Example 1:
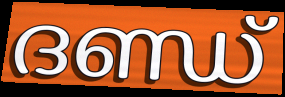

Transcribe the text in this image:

ദണ്ഡ്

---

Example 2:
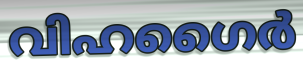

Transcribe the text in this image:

വിഹഗൈർ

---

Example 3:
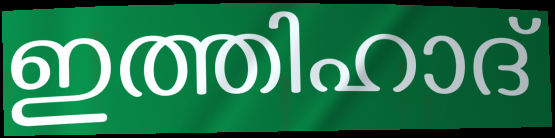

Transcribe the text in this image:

ഇത്തിഹാദ്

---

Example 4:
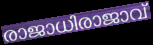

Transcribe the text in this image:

രാജാധിരാജാവ്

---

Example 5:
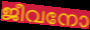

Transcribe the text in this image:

ജീവനോ